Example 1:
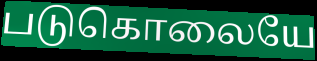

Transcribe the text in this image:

படுகொலையே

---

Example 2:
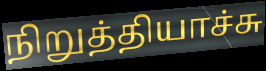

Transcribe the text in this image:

நிறுத்தியாச்சு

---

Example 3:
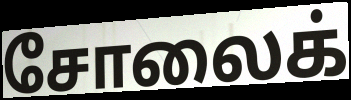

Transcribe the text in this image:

சோலைக்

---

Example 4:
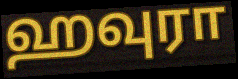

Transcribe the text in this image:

ஹவுரா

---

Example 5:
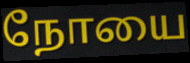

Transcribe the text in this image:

நோயை